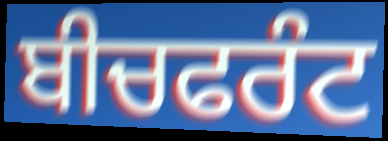
ਬੀਚਫਰੰਟ